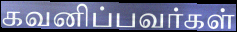
கவனிப்பவர்கள்